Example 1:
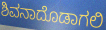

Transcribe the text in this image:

ಶಿವನಾದೊಡಾಗಲಿ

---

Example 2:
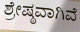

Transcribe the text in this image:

ಶ್ರೇಷ್ಠವಾಗಿವೆ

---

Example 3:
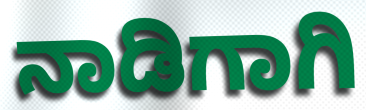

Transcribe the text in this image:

ನಾಡಿಗಾಗಿ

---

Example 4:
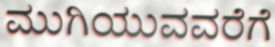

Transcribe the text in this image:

ಮುಗಿಯುವವರೆಗೆ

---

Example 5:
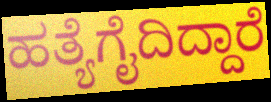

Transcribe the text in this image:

ಹತ್ಯೆಗೈದಿದ್ದಾರೆ